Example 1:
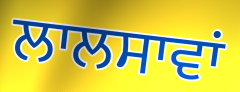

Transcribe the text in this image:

ਲਾਲਸਾਵਾਂ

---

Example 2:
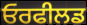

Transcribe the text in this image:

ਓਰਫੀਲਡ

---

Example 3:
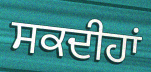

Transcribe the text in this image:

ਸਕਦੀਹਾਂ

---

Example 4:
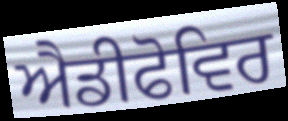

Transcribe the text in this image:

ਐਡੀਫੋਵਿਰ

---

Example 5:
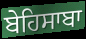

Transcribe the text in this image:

ਬੇਹਿਸਾਬਾ